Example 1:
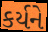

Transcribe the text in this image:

કર્યને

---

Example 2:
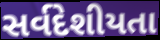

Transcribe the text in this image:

સર્વદેશીયતા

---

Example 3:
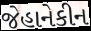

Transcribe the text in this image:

જેહાનેકીન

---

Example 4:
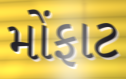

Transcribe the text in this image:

મોંફાટ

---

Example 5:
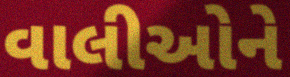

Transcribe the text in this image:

વાલીઓને